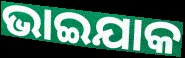
ଭାଇଯାକ